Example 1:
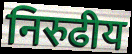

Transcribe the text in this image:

निरुढीय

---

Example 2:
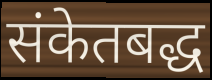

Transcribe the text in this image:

संकेतबद्ध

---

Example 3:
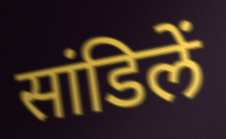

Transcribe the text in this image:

सांडिलें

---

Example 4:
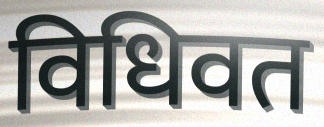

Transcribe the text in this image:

विधिवत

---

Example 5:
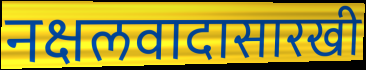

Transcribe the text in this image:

नक्षलवादासारखी